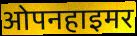
ओपनहाइमर